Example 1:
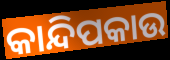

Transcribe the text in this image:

କାନ୍ଦିପକାଉ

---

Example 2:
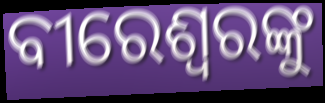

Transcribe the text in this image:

ବୀରେଶ୍ୱରଙ୍କୁ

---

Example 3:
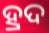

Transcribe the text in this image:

ହ୍ରଦ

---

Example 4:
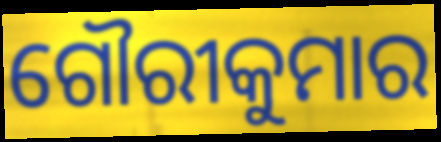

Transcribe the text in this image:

ଗୌରୀକୁମାର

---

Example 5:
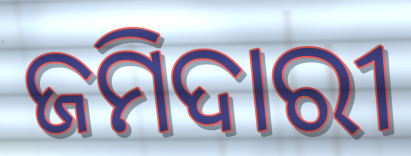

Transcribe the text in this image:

ଜମିଦାରୀ